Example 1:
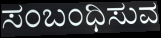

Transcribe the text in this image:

ಸಂಬಂಧಿಸುವ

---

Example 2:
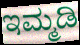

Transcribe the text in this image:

ಇಮ್ಮಡಿ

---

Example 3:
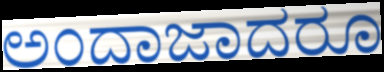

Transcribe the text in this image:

ಅಂದಾಜಾದರೂ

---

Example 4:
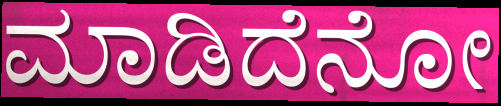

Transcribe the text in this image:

ಮಾಡಿದೆನೋ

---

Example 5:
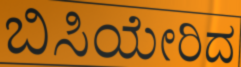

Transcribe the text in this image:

ಬಿಸಿಯೇರಿದ